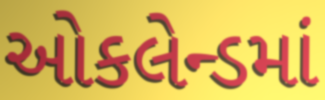
ઓકલેન્ડમાં